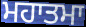
ਮਹਾਤਮਾ